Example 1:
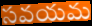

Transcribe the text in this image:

సవయమ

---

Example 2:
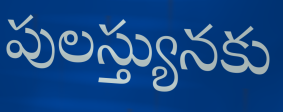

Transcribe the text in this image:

పులస్త్యునకు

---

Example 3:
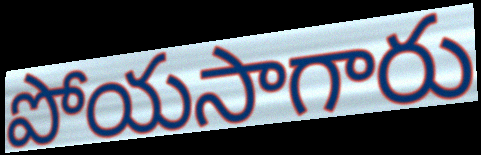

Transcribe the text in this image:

పోయసాగారు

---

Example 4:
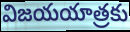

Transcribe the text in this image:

విజయయాత్రకు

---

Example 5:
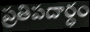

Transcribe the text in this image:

ప్రతిపదార్ధం